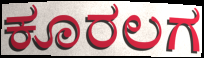
ಕೂರಲಗ